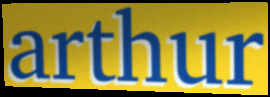
arthur